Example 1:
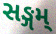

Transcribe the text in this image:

સઙ્ગમ્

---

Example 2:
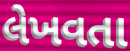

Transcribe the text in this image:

લેખવતા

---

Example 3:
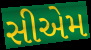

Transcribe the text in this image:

સીએમ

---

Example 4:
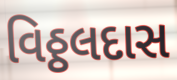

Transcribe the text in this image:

વિઠ્ઠલદાસ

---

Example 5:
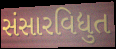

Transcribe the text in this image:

સંસારવિદ્યુત